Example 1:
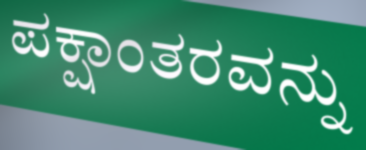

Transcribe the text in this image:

ಪಕ್ಷಾಂತರವನ್ನು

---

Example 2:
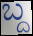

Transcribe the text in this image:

ಬ್ದ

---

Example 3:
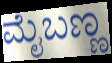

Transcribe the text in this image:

ಮೈಬಣ್ಣ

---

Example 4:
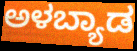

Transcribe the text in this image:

ಅಳಬ್ಯಾಡ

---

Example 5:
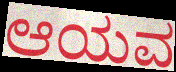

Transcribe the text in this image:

ಆಯವ